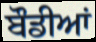
ਬੌਡੀਆਂ